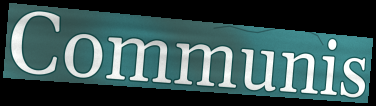
Communis